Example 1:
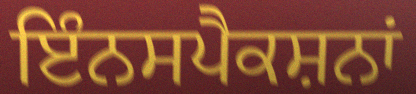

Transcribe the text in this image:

ਇੰਨਸਪੈਕਸ਼ਨਾਂ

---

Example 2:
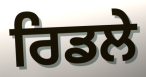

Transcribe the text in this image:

ਰਿਡਲੇ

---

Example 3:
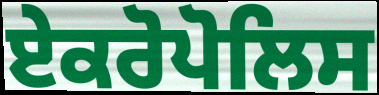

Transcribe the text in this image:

ਏਕਰੋਪੋਲਿਸ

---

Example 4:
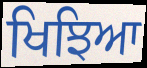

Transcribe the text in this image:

ਖਿਝਿਆ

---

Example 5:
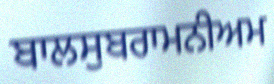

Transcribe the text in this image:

ਬਾਲਸੁਬਰਾਮਨੀਅਮ